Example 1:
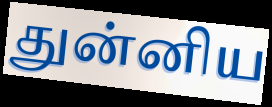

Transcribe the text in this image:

துன்னிய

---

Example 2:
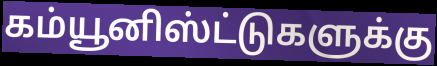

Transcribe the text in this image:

கம்யூனிஸ்ட்டுகளுக்கு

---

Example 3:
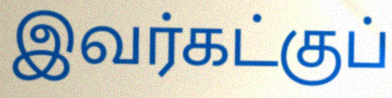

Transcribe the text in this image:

இவர்கட்குப்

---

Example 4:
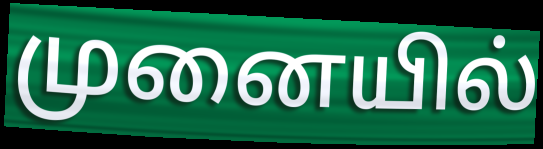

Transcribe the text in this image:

முனையில்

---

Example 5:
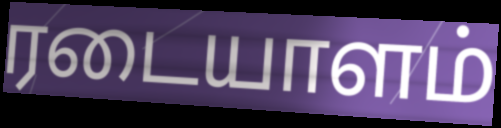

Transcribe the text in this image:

ரடையாளம்